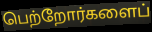
பெற்றோர்களைப்